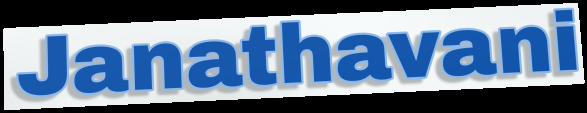
Janathavani